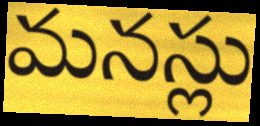
మనస్లు